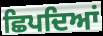
ਛਿਪਦਿਆਂ